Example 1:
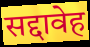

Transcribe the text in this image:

सद्दावेह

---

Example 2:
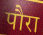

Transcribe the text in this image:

पौरा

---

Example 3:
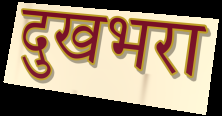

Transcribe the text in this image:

दुखभरा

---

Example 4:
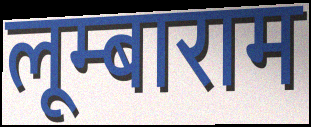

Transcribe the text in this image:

लूम्बाराम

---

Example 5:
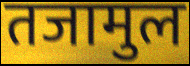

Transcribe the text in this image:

तजामुल